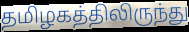
தமிழகத்திலிருந்து